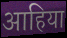
आहिया